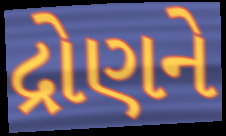
દ્રોણને